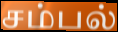
சம்பல்